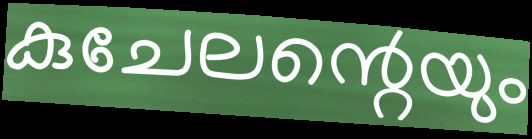
കുചേലന്റെയും